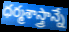
ధర్మశాస్త్రాన్నే